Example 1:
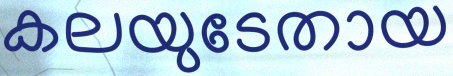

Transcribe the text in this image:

കലയുടേതായ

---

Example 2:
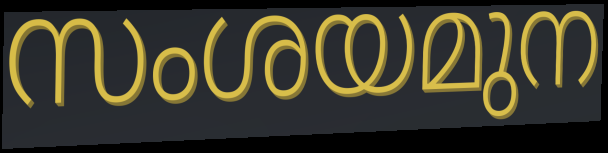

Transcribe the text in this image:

സംശയമുന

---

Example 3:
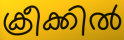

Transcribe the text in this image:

ക്രീക്കിൽ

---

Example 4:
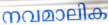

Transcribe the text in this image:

നവമാലിക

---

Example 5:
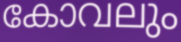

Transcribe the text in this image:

കോവലും